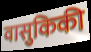
वासुकिकी